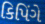
કિપિંગે